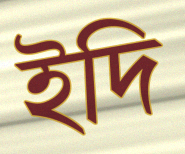
ইদি